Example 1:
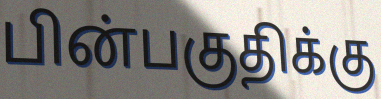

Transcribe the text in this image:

பின்பகுதிக்கு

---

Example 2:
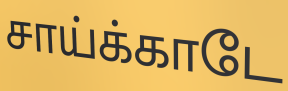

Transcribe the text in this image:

சாய்க்காடே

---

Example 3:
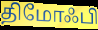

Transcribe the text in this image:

திமோஃபி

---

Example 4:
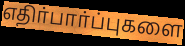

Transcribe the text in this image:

எதிர்பார்ப்புகளை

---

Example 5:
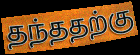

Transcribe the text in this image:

தந்ததற்கு